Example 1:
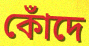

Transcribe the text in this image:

কোঁদে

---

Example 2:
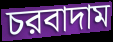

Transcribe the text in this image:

চরবাদাম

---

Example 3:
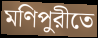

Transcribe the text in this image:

মণিপুরীতে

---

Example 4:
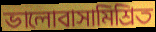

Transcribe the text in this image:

ভালোবাসামিশ্রিত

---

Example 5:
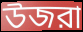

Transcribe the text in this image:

উজরা